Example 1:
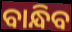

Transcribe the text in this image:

ବାନ୍ଧିବ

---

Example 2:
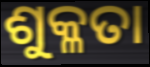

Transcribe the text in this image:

ଶୁକ୍ଳତା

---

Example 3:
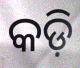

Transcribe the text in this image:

କଡ଼ି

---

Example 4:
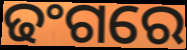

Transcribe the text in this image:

ଢଂଗରେ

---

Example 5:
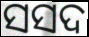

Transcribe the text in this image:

ସସଦ